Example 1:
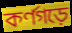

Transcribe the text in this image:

কর্ণগড়ে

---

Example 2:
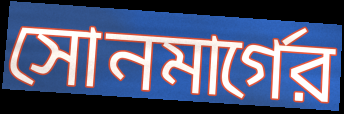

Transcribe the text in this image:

সোনমার্গের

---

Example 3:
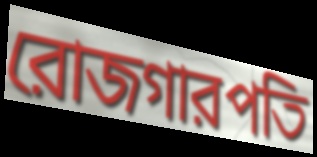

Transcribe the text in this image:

রোজগারপতি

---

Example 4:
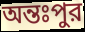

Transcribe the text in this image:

অন্তঃপুর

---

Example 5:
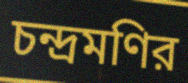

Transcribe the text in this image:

চন্দ্রমণির